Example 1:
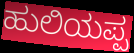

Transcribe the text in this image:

ಹುಲಿಯಪ್ಪ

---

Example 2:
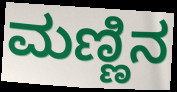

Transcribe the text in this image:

ಮಣ್ಣಿನ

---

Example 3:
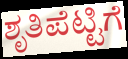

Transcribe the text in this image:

ಶೃತಿಪೆಟ್ಟಿಗೆ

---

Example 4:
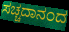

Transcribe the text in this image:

ಸಚ್ಚದಾನಂದ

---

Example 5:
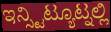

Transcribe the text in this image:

ಇನ್ಸ್ಟಿಟ್ಯೂಟ್ನಲ್ಲಿ